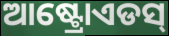
ଆଷ୍ଟ୍ରୋଏଡସ୍